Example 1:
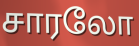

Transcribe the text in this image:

சாரலோ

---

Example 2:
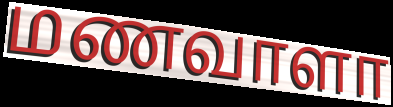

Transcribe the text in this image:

மணவாளா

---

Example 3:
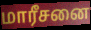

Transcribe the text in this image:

மாரீசனை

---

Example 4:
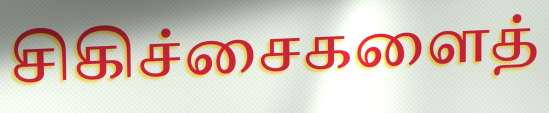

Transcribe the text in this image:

சிகிச்சைகளைத்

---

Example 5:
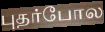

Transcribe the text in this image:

புதர்போல